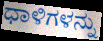
ಧಾಳಿಗಳನ್ನು